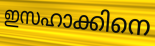
ഇസഹാക്കിനെ